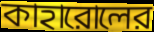
কাহারোলের